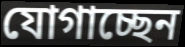
যোগাচ্ছেন